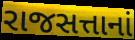
રાજસત્તાનાં